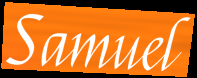
Samuel